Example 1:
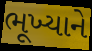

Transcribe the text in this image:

ભૂખ્યાને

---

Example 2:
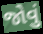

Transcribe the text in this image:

જોવું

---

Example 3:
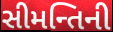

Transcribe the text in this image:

સીમન્તિની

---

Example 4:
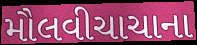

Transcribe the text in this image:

મૌલવીચાચાના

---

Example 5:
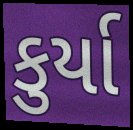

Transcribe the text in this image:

કુર્યા